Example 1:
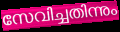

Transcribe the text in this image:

സേവിച്ചതിന്നും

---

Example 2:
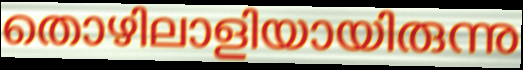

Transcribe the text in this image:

തൊഴിലാളിയായിരുന്നു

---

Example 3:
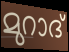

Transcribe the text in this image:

മുറാദ്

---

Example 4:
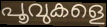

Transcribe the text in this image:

പൂവുകളെ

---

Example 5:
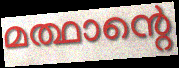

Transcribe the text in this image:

മത്ഥാന്റെ